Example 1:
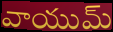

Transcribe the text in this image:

వాయుమ్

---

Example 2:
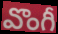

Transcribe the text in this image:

వొంగీ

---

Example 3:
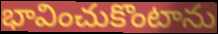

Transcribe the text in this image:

భావించుకొంటాను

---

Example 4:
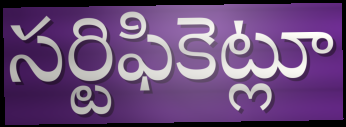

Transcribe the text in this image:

సర్టిఫికెట్లూ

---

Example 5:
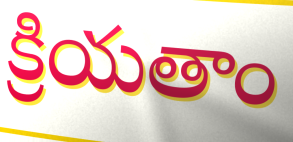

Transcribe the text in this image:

క్రియతాం